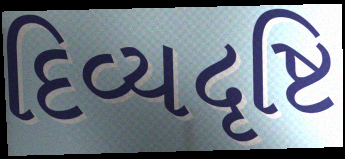
દિવ્યદૃષ્ટિ